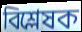
বিশ্লেষক